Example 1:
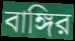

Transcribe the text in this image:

বাঙ্গির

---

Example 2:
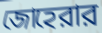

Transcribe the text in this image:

জোহেরার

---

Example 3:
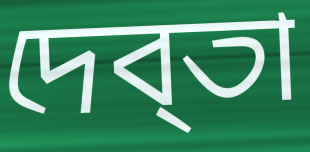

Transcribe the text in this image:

দেব্‌তা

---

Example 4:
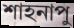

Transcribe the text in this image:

শাহনাপু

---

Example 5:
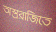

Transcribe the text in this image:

অস্ত্ররাজিতে